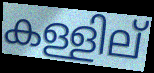
കള്ളില്